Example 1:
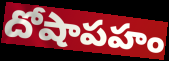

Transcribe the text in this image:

దోషాపహం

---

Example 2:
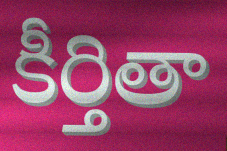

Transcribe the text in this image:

కీర్తితా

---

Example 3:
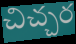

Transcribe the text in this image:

చిచ్చర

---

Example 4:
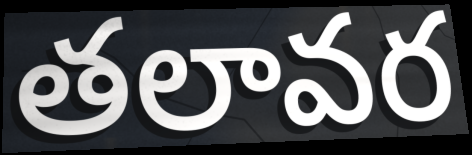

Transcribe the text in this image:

తలావర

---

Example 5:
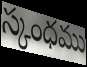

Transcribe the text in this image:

స్కంధము